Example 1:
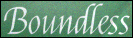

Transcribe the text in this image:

Boundless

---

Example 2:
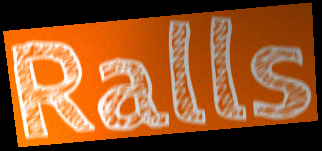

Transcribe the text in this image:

Ralls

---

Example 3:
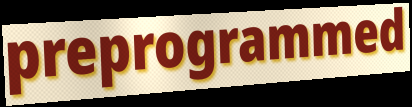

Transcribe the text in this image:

preprogrammed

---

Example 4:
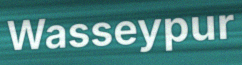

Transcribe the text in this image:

Wasseypur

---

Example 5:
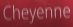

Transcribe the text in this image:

Cheyenne